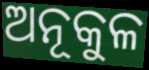
ଅନୂକୁଳ